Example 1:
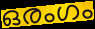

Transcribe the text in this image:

ഒരംഗം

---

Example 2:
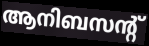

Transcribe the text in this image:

ആനിബസന്റ്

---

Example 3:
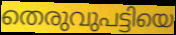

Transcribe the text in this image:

തെരുവുപട്ടിയെ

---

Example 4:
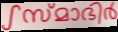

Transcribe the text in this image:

ഽസ്മാഭിർ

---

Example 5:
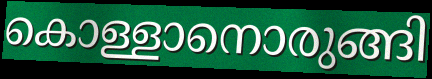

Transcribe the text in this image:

കൊള്ളാനൊരുങ്ങി